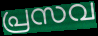
പ്രസവ